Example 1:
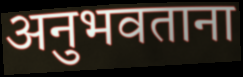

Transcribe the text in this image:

अनुभवताना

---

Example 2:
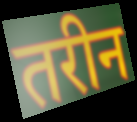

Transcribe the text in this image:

तरीन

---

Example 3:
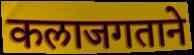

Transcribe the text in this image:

कलाजगताने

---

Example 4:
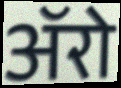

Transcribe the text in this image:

ॲरो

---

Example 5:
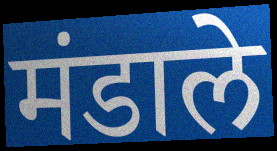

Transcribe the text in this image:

मंडाले